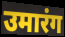
उमारंग